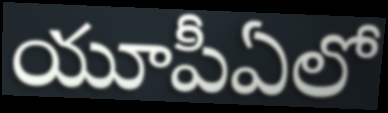
యూపీఏలో